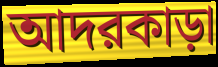
আদরকাড়া